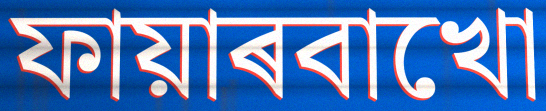
ফায়াৰবাখো